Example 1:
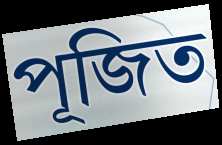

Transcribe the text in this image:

পূজিত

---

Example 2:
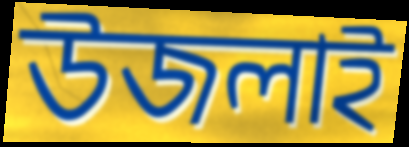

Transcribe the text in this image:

উজলাই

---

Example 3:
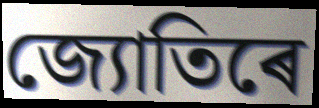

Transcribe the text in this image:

জ্যোতিৰে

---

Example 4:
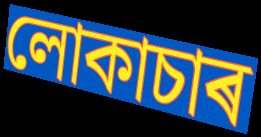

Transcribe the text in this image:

লোকাচাৰ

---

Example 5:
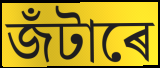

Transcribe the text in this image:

জঁটাৰে